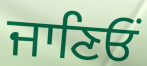
ਜਾਣਿਓਂ